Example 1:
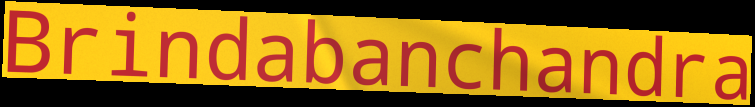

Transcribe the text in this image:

Brindabanchandra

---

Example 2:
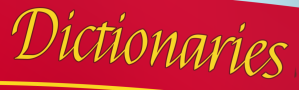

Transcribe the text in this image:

Dictionaries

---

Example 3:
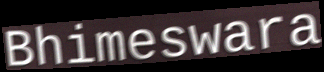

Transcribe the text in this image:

Bhimeswara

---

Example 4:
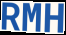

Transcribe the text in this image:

RMH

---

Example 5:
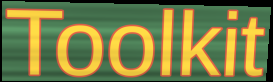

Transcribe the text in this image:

Toolkit